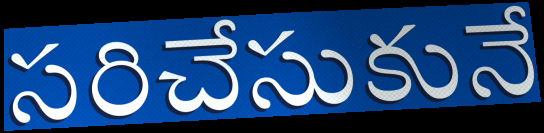
సరిచేసుకునే